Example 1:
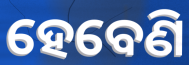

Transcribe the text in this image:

ହେବେଣି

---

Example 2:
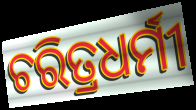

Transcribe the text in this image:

ଚରିତ୍ରଧର୍ମୀ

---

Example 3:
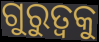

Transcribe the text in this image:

ଗୁରୁତ୍ୱକୁ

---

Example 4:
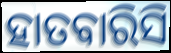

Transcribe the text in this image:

ହାତବାରିସି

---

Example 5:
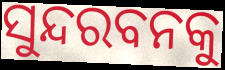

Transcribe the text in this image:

ସୁନ୍ଦରବନକୁ